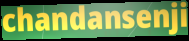
chandansenji